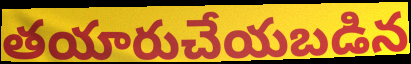
తయారుచేయబడిన